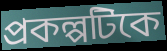
প্রকল্পটিকে